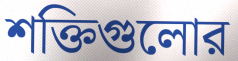
শক্তিগুলোর